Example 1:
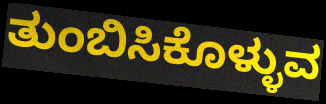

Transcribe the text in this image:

ತುಂಬಿಸಿಕೊಳ್ಳುವ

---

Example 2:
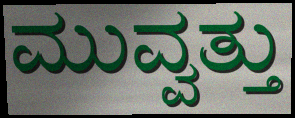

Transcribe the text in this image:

ಮುವ್ವತ್ತು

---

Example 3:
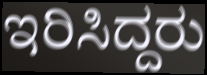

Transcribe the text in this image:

ಇರಿಸಿದ್ದರು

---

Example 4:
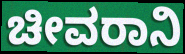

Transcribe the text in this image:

ಚೀವರಾನಿ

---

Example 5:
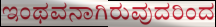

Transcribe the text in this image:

ಇಂಥವನಾಗಿರುವುದರಿಂದ